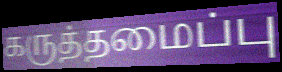
கருத்தமைப்பு